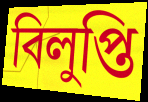
বিলুপ্তি